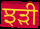
ਝੜੀ